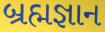
બ્રહ્મજ્ઞાન